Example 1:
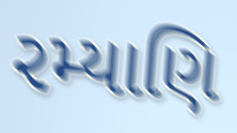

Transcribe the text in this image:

રમ્યાણિ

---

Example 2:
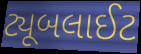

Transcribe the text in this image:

ટ્યૂબલાઈટ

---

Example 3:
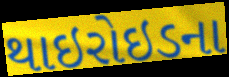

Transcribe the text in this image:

થાઇરોઇડના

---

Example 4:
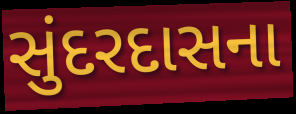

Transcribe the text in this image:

સુંદરદાસના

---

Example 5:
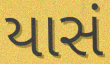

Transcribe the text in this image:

યાસં